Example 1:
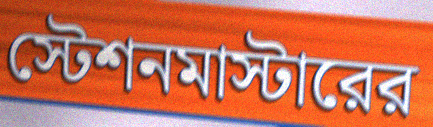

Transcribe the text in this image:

স্টেশনমাস্টারের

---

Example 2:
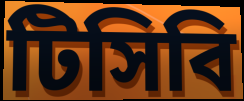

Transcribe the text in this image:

টিসিবি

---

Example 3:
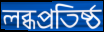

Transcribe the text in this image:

লব্ধপ্রতিষ্ঠ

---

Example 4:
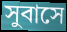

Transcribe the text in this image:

সুবাসে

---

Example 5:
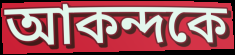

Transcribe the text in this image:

আকন্দকে